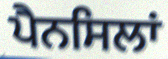
ਪੈਨਸਿਲਾਂ